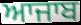
ਆਜਾਬ